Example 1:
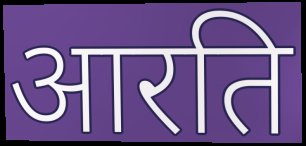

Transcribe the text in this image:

आरति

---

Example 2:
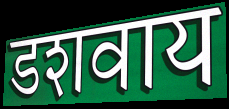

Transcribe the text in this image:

डशवाय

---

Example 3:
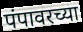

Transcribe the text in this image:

पंपावरच्या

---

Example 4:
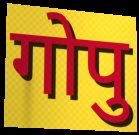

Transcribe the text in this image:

गोपु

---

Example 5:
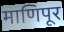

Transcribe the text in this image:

माणिपूर